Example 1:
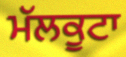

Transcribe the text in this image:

ਮੱਲਕੂਟਾ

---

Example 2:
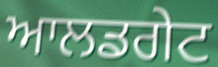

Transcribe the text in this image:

ਆਲਡਗੇਟ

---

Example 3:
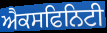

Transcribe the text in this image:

ਐਕਸਫਿਨਿਟੀ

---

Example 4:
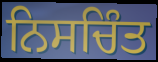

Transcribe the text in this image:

ਨਿਸਚਿੰਤ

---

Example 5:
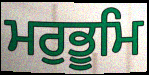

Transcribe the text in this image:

ਮਰੁਭੂਮਿ